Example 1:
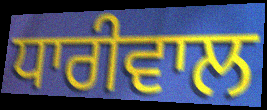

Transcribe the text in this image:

ਧਾਰੀਵਾਲ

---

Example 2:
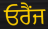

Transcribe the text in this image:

ਓਰੈਂਜ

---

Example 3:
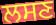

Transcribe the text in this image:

ਲਸਣ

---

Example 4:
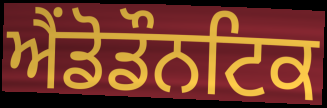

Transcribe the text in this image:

ਐਂਡੋਡੌਨਟਿਕ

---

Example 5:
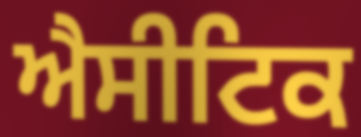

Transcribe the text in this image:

ਐਸੀਟਿਕ